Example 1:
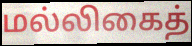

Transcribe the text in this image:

மல்லிகைத்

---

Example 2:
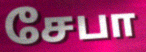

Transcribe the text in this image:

சேபா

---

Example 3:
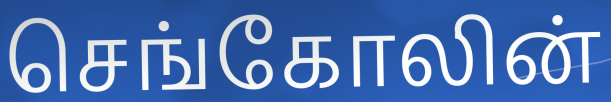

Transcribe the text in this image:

செங்கோலின்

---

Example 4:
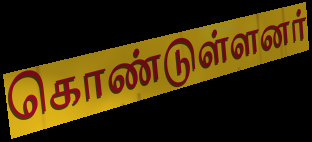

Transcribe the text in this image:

கொண்டுள்ளனர்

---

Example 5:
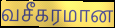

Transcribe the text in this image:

வசீகரமான